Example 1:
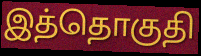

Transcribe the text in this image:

இத்தொகுதி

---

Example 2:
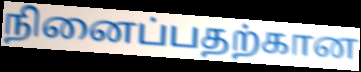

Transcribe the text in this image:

நினைப்பதற்கான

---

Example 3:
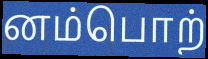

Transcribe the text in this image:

னம்பொற்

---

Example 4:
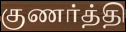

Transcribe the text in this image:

குணர்த்தி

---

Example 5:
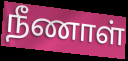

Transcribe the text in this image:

நீணாள்